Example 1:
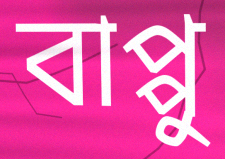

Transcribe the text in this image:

বাপ্পু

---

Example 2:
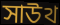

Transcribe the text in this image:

সাউথ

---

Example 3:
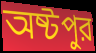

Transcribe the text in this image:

অষ্টপুর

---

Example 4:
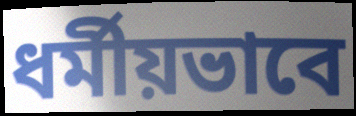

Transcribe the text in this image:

ধর্মীয়ভাবে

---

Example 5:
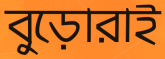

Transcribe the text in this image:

বুড়োরাই